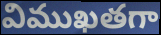
విముఖతగా